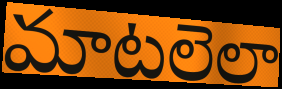
మాటలెలా